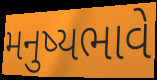
મનુષ્યભાવે